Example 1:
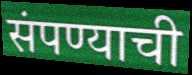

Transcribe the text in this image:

संपण्याची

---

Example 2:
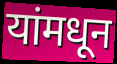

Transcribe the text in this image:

यांमधून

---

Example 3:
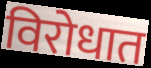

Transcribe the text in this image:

विरोधात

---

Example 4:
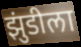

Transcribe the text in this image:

झुंडीला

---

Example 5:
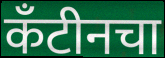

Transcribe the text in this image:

कँटीनचा